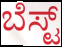
ಬೆಸ್ಟ್